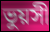
ভুয়সী